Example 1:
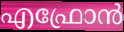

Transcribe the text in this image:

എഫ്രോൻ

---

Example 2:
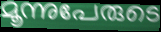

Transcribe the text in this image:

മൂന്നുപേരുടെ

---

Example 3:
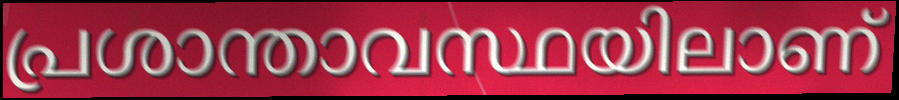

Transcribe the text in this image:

പ്രശാന്താവസ്ഥയിലാണ്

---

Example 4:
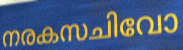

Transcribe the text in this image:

നരകസചിവോ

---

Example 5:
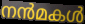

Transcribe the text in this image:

നൻമകൾ